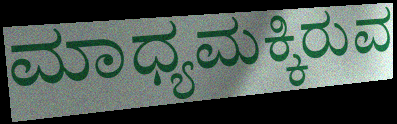
ಮಾಧ್ಯಮಕ್ಕಿರುವ